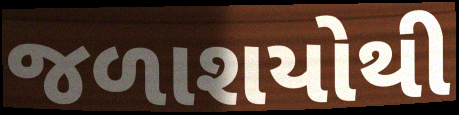
જળાશયોથી